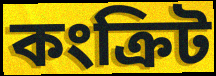
কংক্রিট